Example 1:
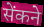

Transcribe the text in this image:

सेंकने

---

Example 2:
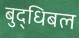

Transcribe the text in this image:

बुद्धिबल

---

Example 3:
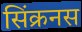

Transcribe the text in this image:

सिंक्रनस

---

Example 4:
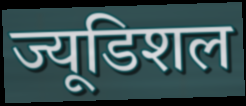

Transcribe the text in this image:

ज्यूडिशल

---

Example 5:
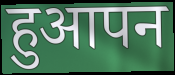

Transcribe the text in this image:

हुआपन